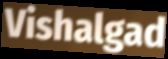
Vishalgad